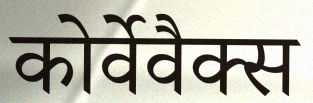
कोर्वेवैक्स